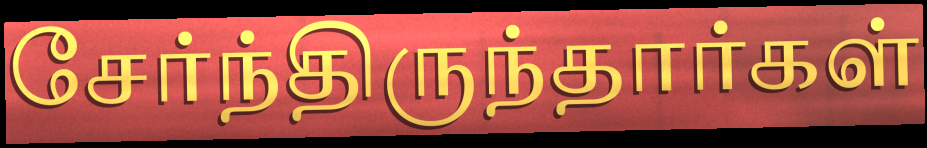
சேர்ந்திருந்தார்கள்